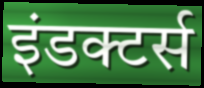
इंडक्टर्स